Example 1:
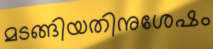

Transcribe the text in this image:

മടങ്ങിയതിനുശേഷം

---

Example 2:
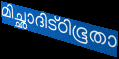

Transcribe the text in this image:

മിച്ഛാദിട്ഠിഭൂതാ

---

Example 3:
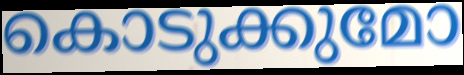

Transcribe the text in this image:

കൊടുക്കുമോ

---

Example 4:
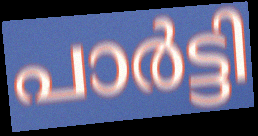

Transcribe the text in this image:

പാർട്ടി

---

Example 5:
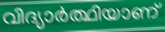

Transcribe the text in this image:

വിദ്യാർത്ഥിയാണ്